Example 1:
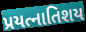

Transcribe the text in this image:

પ્રયત્નાતિશય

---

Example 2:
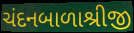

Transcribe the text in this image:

ચંદનબાળાશ્રીજી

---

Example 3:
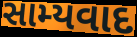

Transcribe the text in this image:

સામ્યવાદ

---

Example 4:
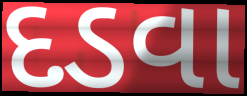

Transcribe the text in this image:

દડવા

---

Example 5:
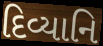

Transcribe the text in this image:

દિવ્યાનિ